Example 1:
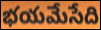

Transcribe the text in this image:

భయమేసేది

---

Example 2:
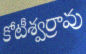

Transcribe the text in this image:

కోటీశ్వర్రావు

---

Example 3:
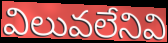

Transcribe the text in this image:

విలువలేనివి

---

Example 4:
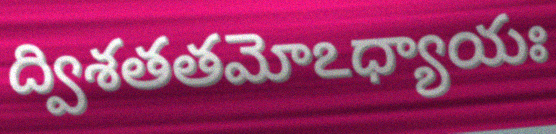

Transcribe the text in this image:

ద్విశతతమోఽధ్యాయః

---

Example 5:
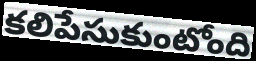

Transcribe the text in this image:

కలిపేసుకుంటోంది